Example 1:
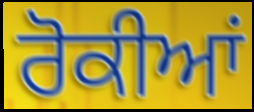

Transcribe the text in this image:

ਰੋਕੀਆਂ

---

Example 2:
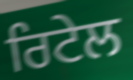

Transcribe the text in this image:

ਰਿਟੇਲ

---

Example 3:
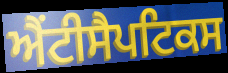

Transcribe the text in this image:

ਐਂਟੀਸੈਪਟਿਕਸ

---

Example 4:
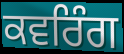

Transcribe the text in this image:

ਕਵਰਿੰਗ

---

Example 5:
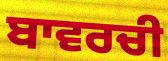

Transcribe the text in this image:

ਬਾਵਰਚੀ